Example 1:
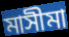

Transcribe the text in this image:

মাসীমা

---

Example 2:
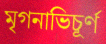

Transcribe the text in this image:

মৃগনাভিচূর্ণ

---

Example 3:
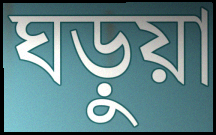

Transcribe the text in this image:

ঘড়ুয়া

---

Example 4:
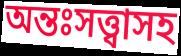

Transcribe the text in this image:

অন্তঃসত্ত্বাসহ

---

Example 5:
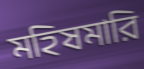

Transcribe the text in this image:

মহিষমারি